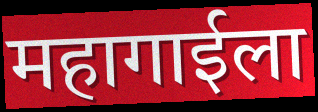
महागाईला